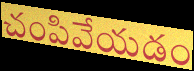
చంపివేయడం